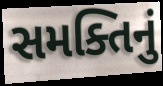
સમક્તિનું